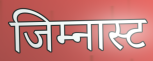
जिम्नास्ट